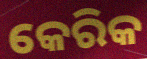
କେରିକ